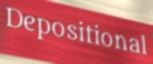
Depositional